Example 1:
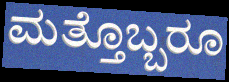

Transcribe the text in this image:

ಮತ್ತೊಬ್ಬರೂ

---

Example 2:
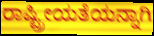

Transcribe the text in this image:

ರಾಷ್ಟ್ರೀಯತೆಯನ್ನಾಗಿ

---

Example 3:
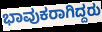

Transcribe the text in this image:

ಭಾವುಕರಾಗಿದ್ದರು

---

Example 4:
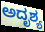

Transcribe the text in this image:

ಅದೃಶ್ಯ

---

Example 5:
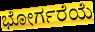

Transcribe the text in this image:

ಭೋರ್ಗರೆಯೆ